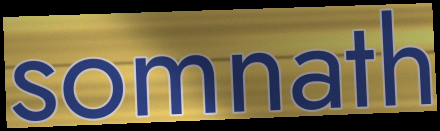
somnath